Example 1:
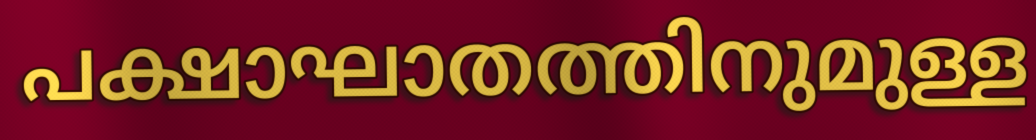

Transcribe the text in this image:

പക്ഷാഘാതത്തിനുമുള്ള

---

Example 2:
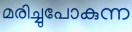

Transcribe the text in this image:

മരിച്ചുപോകുന്ന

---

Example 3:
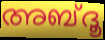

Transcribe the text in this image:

അബ്ദൂ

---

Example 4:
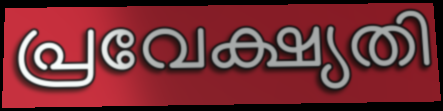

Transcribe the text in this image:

പ്രവേക്ഷ്യതി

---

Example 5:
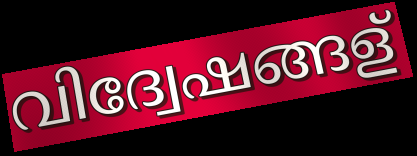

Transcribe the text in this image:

വിദ്വേഷങ്ങള്